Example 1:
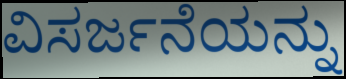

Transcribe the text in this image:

ವಿಸರ್ಜನೆಯನ್ನು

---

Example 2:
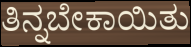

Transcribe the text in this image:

ತಿನ್ನಬೇಕಾಯಿತು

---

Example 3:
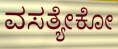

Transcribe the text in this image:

ವಸತ್ಯೇಕೋ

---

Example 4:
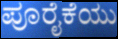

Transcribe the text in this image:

ಪೂರೈಕೆಯು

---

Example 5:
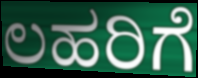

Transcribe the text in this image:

ಲಹರಿಗೆ